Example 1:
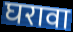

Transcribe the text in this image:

घरावा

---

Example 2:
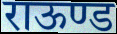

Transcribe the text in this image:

राऊण्ड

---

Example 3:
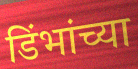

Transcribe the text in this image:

डिंभांच्या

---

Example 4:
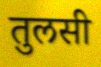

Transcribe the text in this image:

तुलसी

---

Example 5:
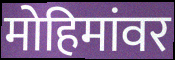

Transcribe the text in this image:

मोहिमांवर